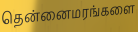
தென்னைமரங்களை